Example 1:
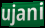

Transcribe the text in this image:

ujani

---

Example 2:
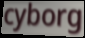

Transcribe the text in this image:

cyborg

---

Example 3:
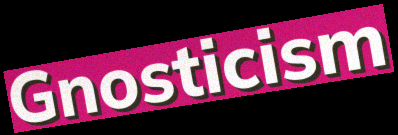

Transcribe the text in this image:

Gnosticism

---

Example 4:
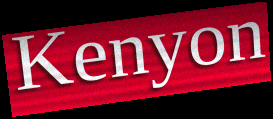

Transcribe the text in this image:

Kenyon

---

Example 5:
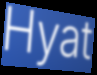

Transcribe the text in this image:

Hyat